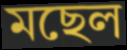
মছেল